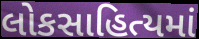
લોકસાહિત્યમાં